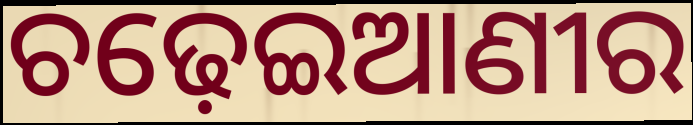
ଚଢ଼େଇଆଣୀର